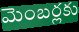
మెంబర్లకు